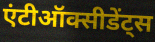
एंटीऑक्सीडेंट्स